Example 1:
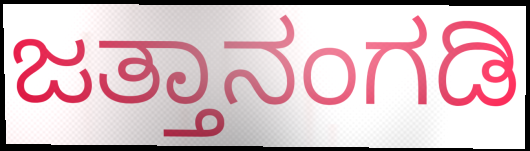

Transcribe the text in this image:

ಜತ್ತಾನಂಗಡಿ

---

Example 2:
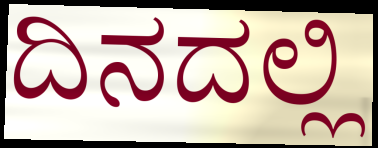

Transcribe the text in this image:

ದಿನದಲ್ಲಿ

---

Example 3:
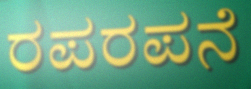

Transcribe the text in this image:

ರಪರಪನೆ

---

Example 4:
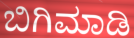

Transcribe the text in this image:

ಬಿಗಿಮಾಡಿ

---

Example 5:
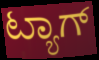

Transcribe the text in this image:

ಟ್ಯಾಗ್